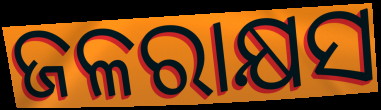
ଜଳରାକ୍ଷସ